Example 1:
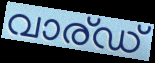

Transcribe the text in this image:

വാര്ഡ്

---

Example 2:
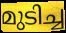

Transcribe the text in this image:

മുടിച്ച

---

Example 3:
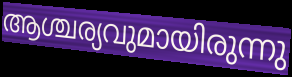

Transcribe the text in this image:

ആശ്ചര്യവുമായിരുന്നു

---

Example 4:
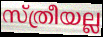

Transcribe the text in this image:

സ്ത്രീയല്ല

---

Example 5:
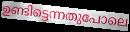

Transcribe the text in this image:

ഉണ്ടിട്ടെന്നതുപോലെ